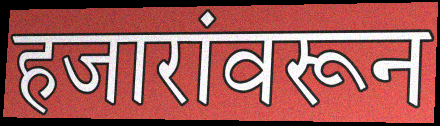
हजारांवरून